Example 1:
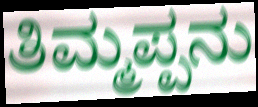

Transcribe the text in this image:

ತಿಮ್ಮಪ್ಪನು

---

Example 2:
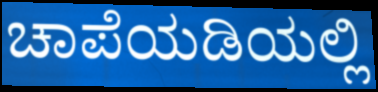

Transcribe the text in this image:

ಚಾಪೆಯಡಿಯಲ್ಲಿ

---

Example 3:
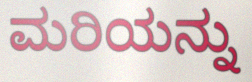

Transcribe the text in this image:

ಮರಿಯನ್ನು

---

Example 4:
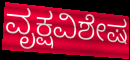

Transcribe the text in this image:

ವೃಕ್ಷವಿಶೇಷ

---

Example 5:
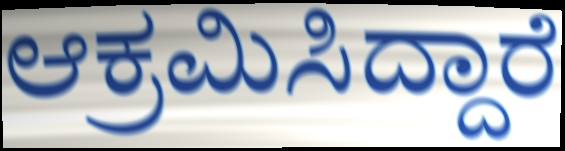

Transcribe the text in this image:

ಆಕ್ರಮಿಸಿದ್ದಾರೆ